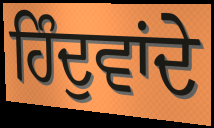
ਹਿੰਦੁਵਾਂਦੇ